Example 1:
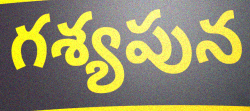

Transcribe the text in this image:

గశ్యపున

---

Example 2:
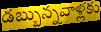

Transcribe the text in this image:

డబ్బున్నవాళ్లకు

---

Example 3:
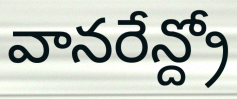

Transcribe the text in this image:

వానరేన్ద్రో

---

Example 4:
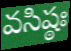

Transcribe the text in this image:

వసిష్ఠః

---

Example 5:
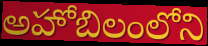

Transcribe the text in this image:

అహోబిలంలోని